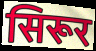
सिरूर